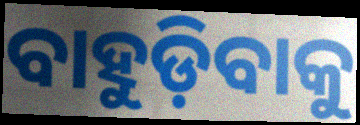
ବାହୁଡ଼ିବାକୁ